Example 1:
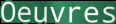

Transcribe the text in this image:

Oeuvres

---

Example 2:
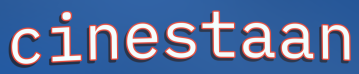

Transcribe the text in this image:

cinestaan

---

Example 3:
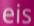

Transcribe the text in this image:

eis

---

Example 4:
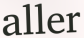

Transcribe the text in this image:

aller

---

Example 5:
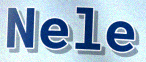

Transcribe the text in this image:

Nele